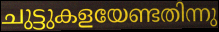
ചുട്ടുകളയേണ്ടതിന്നു